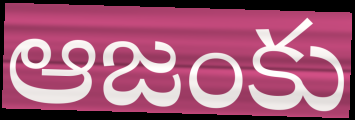
ఆజంకు